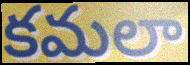
కమలా